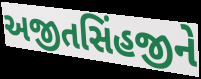
અજીતસિંહજીને